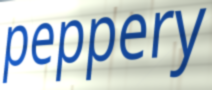
peppery